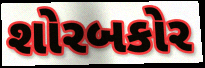
શોરબકોર